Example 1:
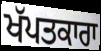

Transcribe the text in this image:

ਖੱਪਤਕਾਰਾ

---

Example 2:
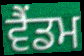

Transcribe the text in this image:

ਵੈਂਡਮ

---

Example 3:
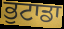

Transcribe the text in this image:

ਭੁਟਾਡਾ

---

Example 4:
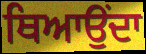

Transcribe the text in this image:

ਥਿਆਉਂਦਾ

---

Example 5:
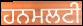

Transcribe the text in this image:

ਹਨਮਲਟੀ